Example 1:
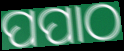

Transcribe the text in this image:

ପପାଠ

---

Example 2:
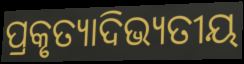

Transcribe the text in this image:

ପ୍ରକୃତ୍ୟାଦିଭ୍ୟତୀୟ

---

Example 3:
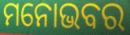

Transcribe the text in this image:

ମନୋଭବର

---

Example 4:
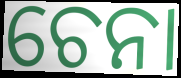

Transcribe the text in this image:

ଚେନା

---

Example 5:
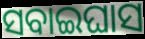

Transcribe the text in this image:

ସବାଇଘାସ